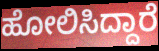
ಹೋಲಿಸಿದ್ದಾರೆ